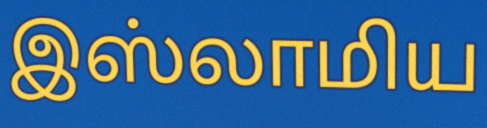
இஸ்லாமிய